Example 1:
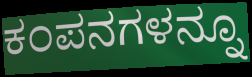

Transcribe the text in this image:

ಕಂಪನಗಳನ್ನೂ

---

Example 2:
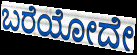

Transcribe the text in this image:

ಬರೆಯೋದೇ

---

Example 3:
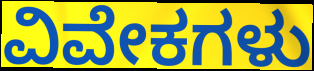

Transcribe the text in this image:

ವಿವೇಕಗಳು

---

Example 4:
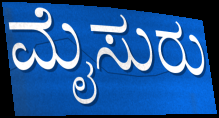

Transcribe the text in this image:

ಮೈಸುರು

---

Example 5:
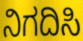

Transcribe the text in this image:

ನಿಗದಿಸಿ